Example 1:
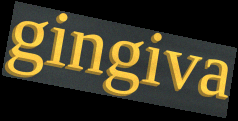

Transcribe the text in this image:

gingiva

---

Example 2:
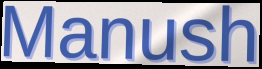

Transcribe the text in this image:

Manush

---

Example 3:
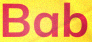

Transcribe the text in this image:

Bab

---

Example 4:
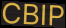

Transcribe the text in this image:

CBIP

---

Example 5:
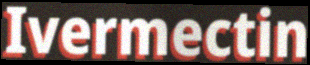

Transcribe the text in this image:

Ivermectin